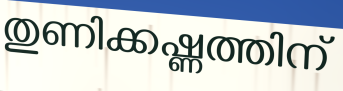
തുണിക്കഷ്ണത്തിന്